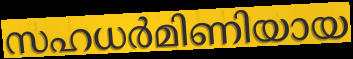
സഹധർമിണിയായ